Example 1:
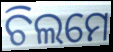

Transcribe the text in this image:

ଚିଲମେ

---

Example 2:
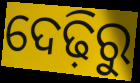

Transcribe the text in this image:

ଦେଢ଼ିରୁ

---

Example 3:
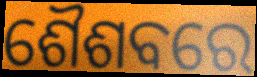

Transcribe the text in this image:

ଶୈଶବରେ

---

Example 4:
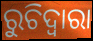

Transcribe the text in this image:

ରୁଚିଦ୍ୱାରା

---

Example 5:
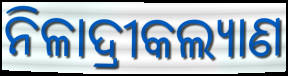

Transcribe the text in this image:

ନିଳାଦ୍ରୀକଲ୍ୟାଣ